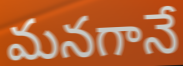
మనగానే